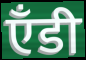
ऍंडी